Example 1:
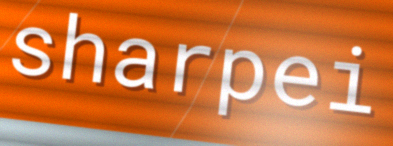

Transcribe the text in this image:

sharpei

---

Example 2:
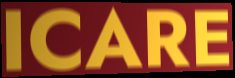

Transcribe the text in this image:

ICARE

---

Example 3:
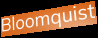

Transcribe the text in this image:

Bloomquist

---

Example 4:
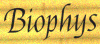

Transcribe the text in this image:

Biophys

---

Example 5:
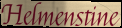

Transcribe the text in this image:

Helmenstine